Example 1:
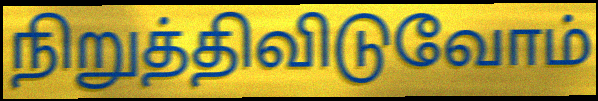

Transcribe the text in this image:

நிறுத்திவிடுவோம்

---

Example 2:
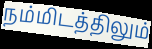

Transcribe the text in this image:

நம்மிடத்திலும்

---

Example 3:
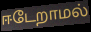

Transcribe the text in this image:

ஈடேறாமல்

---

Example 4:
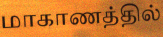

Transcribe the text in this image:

மாகாணத்தில்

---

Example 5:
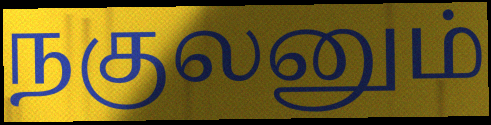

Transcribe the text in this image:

நகுலனும்